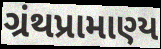
ગ્રંથપ્રામાણ્ય